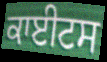
ਕਾਈਟਸ